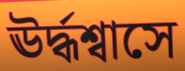
ঊর্দ্ধশ্বাসে